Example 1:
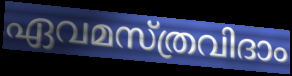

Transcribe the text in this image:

ഏവമസ്ത്രവിദാം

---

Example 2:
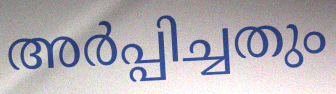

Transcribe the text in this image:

അർപ്പിച്ചതും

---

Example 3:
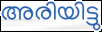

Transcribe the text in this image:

അരിയിട്ടു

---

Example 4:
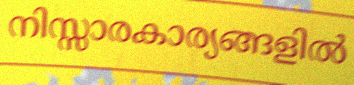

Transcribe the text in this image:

നിസ്സാരകാര്യങ്ങളിൽ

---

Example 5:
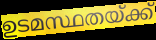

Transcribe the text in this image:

ഉടമസ്ഥതയ്ക്ക്